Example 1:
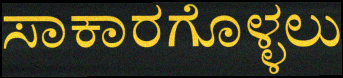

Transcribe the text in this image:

ಸಾಕಾರಗೊಳ್ಳಲು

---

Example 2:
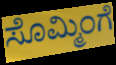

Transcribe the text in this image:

ಸೊಮ್ಮಿಂಗೆ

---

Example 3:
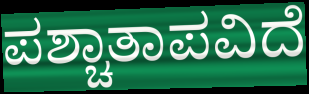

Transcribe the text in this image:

ಪಶ್ಚಾತಾಪವಿದೆ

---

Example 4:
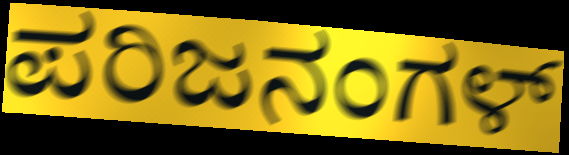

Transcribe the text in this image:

ಪರಿಜನಂಗಳ್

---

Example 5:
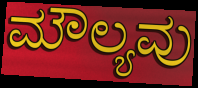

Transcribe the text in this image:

ಮೌಲ್ಯವು